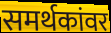
समर्थकांवर